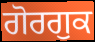
ਗੋਰਗੁਕ